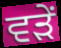
ਵੜੇਂ